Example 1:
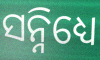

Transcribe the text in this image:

ସନ୍ନିଧ୍ୟେ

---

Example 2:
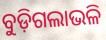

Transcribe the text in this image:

ବୁଡ଼ିଗଲାଭଳି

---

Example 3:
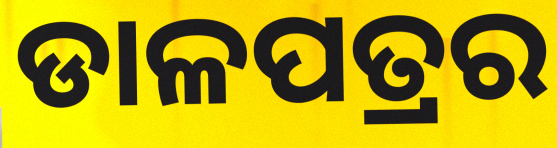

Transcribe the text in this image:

ଡାଳପତ୍ରର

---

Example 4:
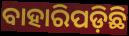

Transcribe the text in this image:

ବାହାରିପଡ଼ିଛି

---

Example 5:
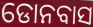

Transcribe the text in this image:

ଡୋନବାସ